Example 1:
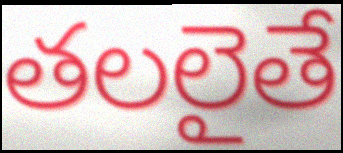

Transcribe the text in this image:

తలలైతే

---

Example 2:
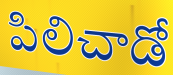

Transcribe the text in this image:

పిలిచాడో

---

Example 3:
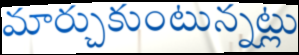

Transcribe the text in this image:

మార్చుకుంటున్నట్లు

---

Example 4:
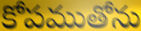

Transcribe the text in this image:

కోపముతోను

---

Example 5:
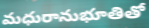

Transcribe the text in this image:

మధురానుభూతితో